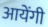
आयेंगी